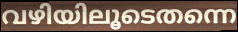
വഴിയിലൂടെതന്നെ